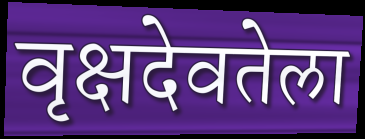
वृक्षदेवतेला